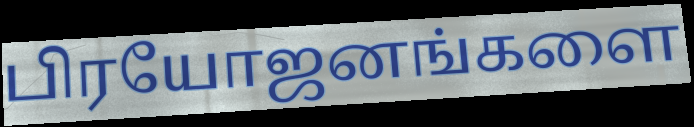
பிரயோஜனங்களை